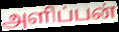
அளிப்பன்